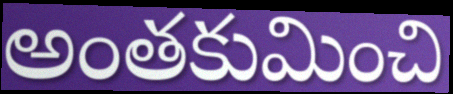
అంతకుమించి